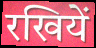
रखियें